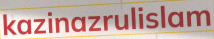
kazinazrulislam